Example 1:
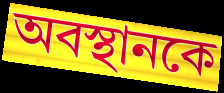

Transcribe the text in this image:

অবস্থানকে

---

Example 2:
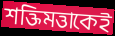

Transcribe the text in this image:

শক্তিমত্তাকেই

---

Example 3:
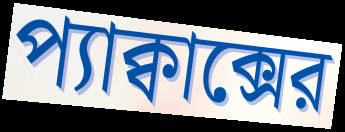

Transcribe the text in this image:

প্যাক্বাক্সের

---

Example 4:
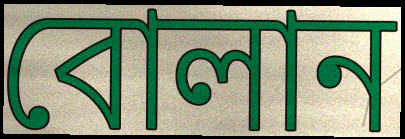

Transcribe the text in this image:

বোলান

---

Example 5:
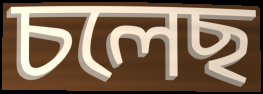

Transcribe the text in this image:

চলেছ